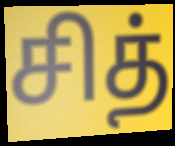
சித்